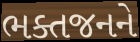
ભક્તજનને